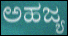
ಅಹಜ್ಯ